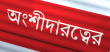
অংশীদারত্বের